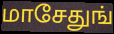
மாசேதுங்